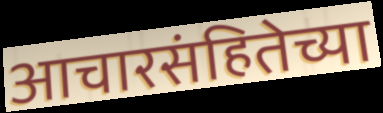
आचारसंहितेच्या